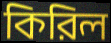
কিরিল